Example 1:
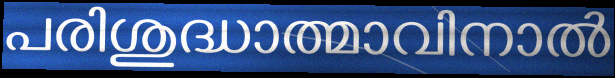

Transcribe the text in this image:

പരിശുദ്ധാത്മാവിനാൽ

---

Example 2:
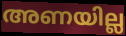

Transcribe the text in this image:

അണയില്ല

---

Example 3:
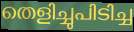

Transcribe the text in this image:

തെളിച്ചുപിടിച്ച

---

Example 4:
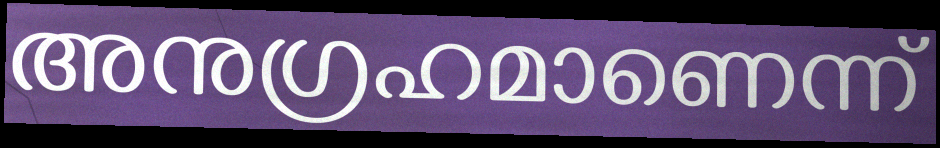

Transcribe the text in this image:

അനുഗ്രഹമാണെന്ന്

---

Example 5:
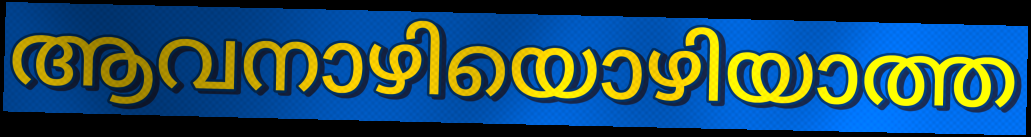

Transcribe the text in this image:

ആവനാഴിയൊഴിയാത്ത